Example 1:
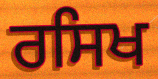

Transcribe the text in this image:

ਰਸਿਖ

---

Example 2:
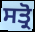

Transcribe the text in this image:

ਸਤ੍ਰੋ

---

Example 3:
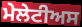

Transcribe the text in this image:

ਮੇਲੇਟੀਅਸ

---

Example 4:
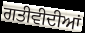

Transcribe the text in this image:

ਗਤੀਵੀਦੀਆਂ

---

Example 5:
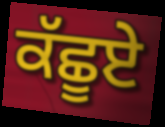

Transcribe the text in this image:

ਕੱਛੂਏ